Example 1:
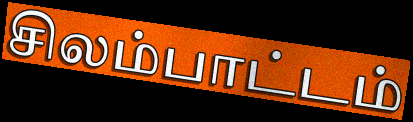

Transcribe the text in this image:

சிலம்பாட்டம்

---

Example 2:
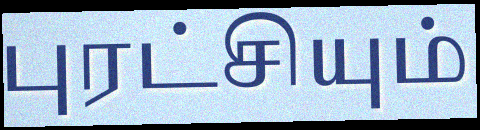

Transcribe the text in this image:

புரட்சியும்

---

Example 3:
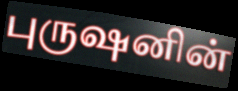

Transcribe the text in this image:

புருஷனின்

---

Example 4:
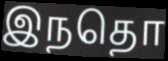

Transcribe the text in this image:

இநதொ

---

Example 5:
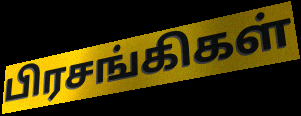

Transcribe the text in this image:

பிரசங்கிகள்